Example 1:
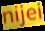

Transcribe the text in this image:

nijei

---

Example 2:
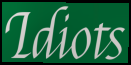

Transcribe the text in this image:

Idiots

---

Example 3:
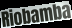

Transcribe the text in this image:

Riobamba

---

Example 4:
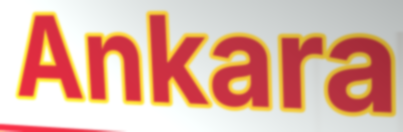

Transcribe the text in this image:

Ankara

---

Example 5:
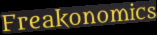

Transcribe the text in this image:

Freakonomics